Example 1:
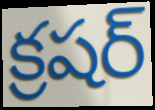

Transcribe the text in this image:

క్రషర్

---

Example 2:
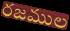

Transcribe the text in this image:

రజముల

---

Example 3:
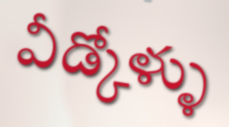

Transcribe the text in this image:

వీడ్కోళ్ళు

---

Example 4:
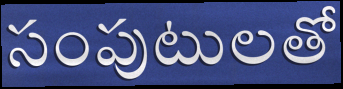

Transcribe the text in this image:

సంపుటులతో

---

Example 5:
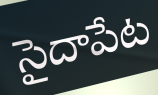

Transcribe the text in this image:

సైదాపేట